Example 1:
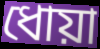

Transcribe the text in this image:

ধোয়া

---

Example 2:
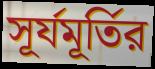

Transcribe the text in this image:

সূর্যমূর্তির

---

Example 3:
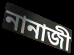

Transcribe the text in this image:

নানাজী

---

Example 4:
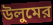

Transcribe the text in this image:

উলুমের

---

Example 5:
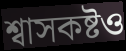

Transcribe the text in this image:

শ্বাসকষ্টও